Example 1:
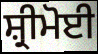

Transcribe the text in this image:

ਸ਼੍ਰੀਮੋਈ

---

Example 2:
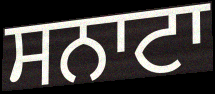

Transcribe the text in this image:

ਸਨਾਟਾ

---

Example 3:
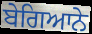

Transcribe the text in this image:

ਬੇਗਿਆਨੇ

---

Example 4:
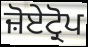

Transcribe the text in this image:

ਜ਼ੋਏਟ੍ਰੋਪ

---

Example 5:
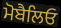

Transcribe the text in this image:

ਮੋਬੈਲਿਓ